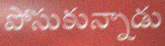
పోసుకున్నాడు